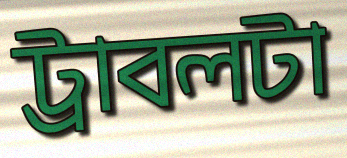
ট্রাবলটা